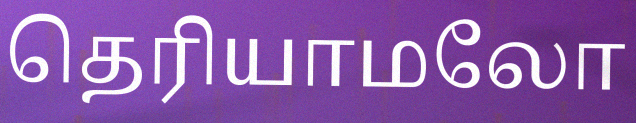
தெரியாமலோ